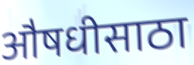
औषधीसाठा